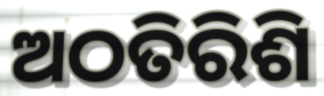
ଅଠତିରିଶି